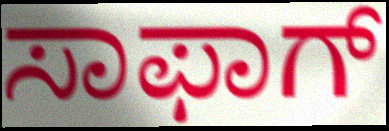
ಸಾಫಾಗ್